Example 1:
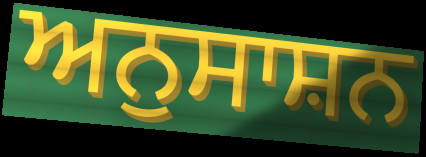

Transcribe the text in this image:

ਅਨੁਸਾਸ਼ਨ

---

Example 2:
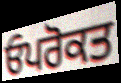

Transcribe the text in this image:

ਓਪਰੋਕਤ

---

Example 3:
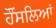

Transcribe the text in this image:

ਹੌਂਸਲਿਆਂ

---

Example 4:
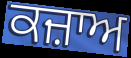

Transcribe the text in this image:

ਕਜ਼ਾਅ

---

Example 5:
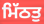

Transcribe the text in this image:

ਮਿੱਠਤੁ